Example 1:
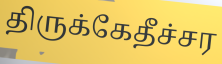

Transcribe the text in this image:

திருக்கேதீச்சர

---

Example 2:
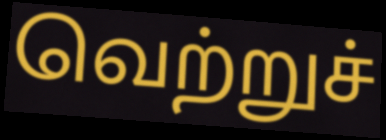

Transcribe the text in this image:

வெற்றுச்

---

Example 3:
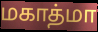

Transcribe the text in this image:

மகாத்மா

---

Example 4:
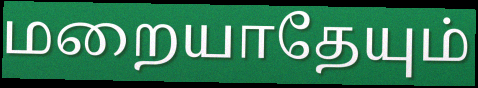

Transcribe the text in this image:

மறையாதேயும்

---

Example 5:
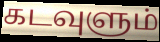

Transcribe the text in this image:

கடவுளும்